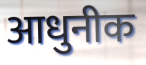
आधुनीक